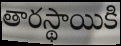
తారస్థాయికి